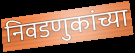
निवडणुकांच्या